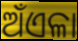
ଅଁଏଳା